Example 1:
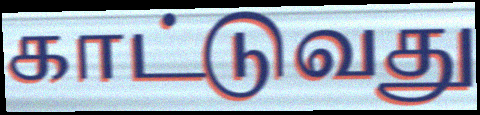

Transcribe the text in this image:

காட்டுவது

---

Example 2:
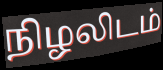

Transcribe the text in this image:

நிழலிடம்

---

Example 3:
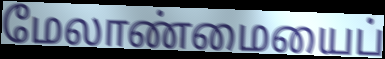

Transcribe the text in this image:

மேலாண்மையைப்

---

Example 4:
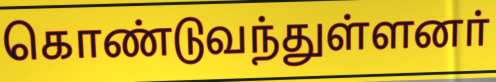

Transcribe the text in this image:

கொண்டுவந்துள்ளனர்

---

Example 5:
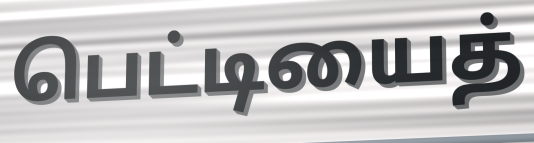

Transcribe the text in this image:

பெட்டியைத்